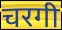
चरगी